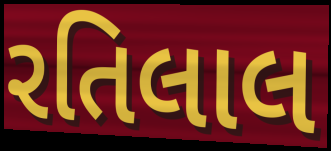
રતિલાલ